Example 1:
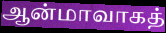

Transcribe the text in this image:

ஆன்மாவாகத்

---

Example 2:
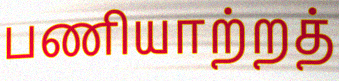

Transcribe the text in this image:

பணியாற்றத்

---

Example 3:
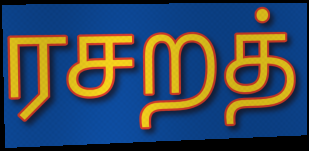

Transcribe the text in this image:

ரசறத்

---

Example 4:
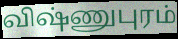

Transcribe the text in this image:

விஷ்ணுபுரம்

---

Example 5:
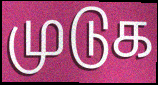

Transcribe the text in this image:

முடுக